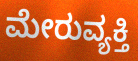
ಮೇರುವ್ಯಕ್ತಿ